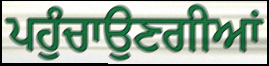
ਪਹੁੰਚਾਉਣਗੀਆਂ